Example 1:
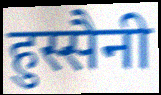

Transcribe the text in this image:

हुस्सैनी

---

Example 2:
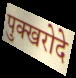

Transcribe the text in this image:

पुक्खरोदे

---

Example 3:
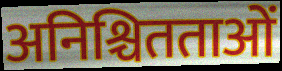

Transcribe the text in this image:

अनिश्चितताओं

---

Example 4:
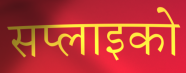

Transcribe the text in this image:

सप्लाइको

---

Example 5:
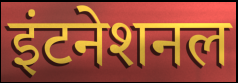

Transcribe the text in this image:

इंटनेशनल